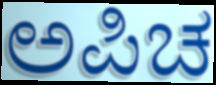
ಅಪಿಚ